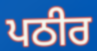
ਪਠੀਰ